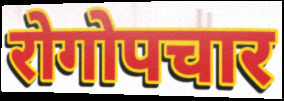
रोगोपचार